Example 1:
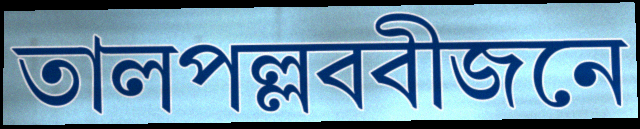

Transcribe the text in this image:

তালপল্লববীজনে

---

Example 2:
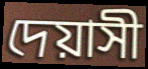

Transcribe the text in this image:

দেয়াসী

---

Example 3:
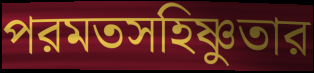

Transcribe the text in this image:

পরমতসহিষ্ণুতার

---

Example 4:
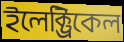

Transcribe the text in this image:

ইলেক্ট্রিকেল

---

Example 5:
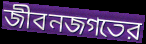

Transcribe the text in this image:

জীবনজগতের